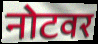
नोटवर